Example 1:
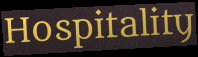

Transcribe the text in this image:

Hospitality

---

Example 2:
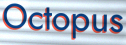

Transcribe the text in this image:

Octopus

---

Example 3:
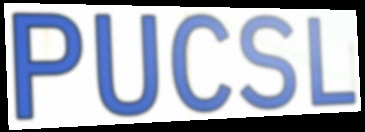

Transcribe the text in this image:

PUCSL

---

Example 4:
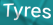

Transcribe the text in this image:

Tyres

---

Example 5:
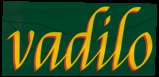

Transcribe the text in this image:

vadilo